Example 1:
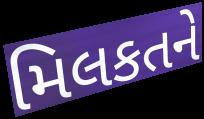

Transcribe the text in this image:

મિલકતને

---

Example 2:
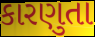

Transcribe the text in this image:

કારણુતા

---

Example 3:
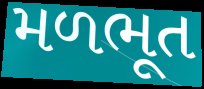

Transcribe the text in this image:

મળભૂત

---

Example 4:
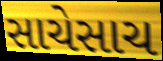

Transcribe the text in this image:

સાચેસાચ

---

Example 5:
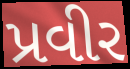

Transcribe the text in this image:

પ્રવીર